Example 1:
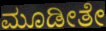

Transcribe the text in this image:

ಮೂಡೀತೇ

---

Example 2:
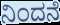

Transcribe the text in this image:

ನಿಂದನೆ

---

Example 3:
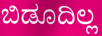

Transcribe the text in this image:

ಬಿಡೂದಿಲ್ಲ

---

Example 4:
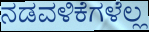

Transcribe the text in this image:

ನಡವಳಿಕೆಗಳೆಲ್ಲ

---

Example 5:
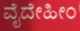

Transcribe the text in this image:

ವೈದೇಹೀಂ